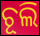
ଚୂଲି